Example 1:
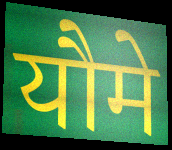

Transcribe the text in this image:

यौमे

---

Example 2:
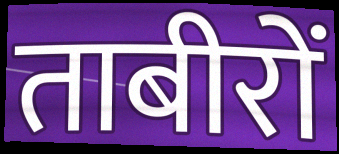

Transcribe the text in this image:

ताबीरों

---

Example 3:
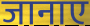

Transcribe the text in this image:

जानाए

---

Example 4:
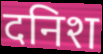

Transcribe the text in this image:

दनिश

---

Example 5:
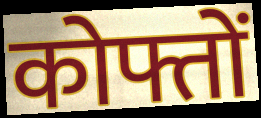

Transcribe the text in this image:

कोफ्तों